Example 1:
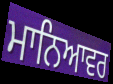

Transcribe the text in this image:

ਮਾਨਿਆਵਰ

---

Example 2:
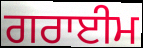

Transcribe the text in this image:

ਗਰਾਈਮ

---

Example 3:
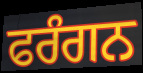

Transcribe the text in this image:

ਫਰੰਗਨ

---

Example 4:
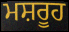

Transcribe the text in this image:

ਮਸ਼ਰੂਹ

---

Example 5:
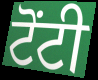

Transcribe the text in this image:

ਟੋਂਟੀ